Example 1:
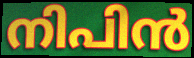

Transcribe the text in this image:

നിപിൻ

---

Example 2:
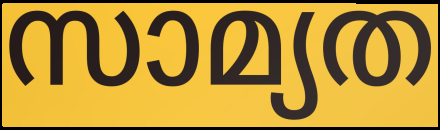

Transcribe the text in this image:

സാമ്യത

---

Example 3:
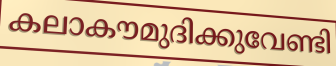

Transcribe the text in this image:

കലാകൗമുദിക്കുവേണ്ടി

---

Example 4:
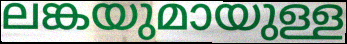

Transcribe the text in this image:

ലങ്കയുമായുള്ള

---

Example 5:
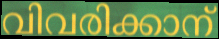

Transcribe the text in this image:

വിവരിക്കാന്